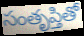
సంతృప్తితో